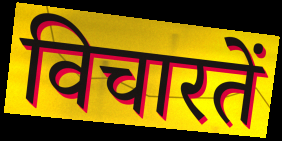
विचारतें